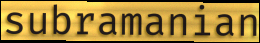
subramanian